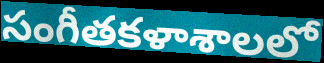
సంగీతకళాశాలలో